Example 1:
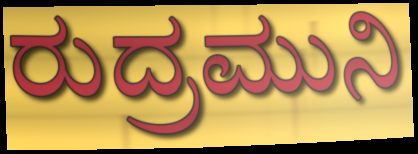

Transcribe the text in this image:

ರುದ್ರಮುನಿ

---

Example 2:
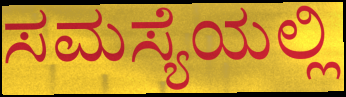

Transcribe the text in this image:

ಸಮಸ್ಯೆಯಲ್ಲಿ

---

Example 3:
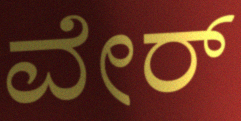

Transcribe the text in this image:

ವೇರ್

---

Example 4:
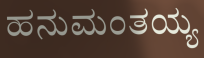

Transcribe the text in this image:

ಹನುಮಂತಯ್ಯ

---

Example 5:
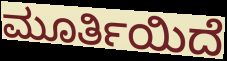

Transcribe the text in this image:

ಮೂರ್ತಿಯಿದೆ